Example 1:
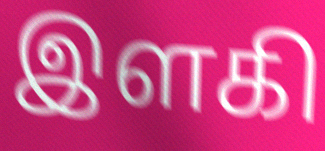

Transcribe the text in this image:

இளகி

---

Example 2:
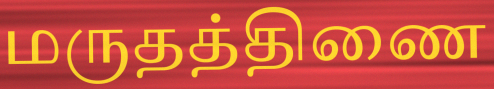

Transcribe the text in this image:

மருதத்திணை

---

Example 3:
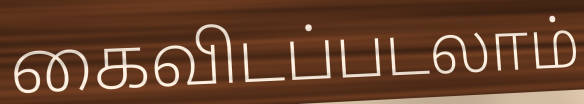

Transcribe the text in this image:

கைவிடப்படலாம்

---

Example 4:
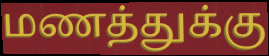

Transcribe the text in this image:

மணத்துக்கு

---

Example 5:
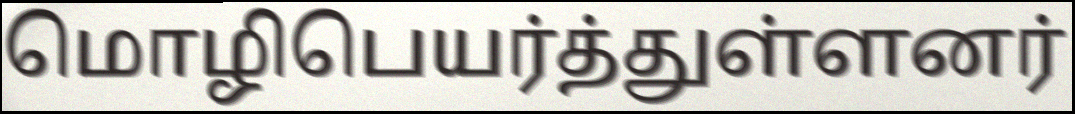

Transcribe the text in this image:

மொழிபெயர்த்துள்ளனர்